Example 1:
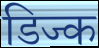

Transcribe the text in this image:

डिज्क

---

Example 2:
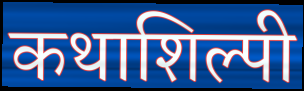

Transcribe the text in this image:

कथाशिल्पी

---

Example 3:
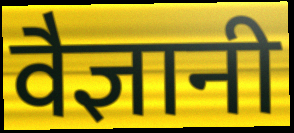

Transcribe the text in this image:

वैज्ञानी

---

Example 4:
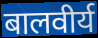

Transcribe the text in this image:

बालवीर्य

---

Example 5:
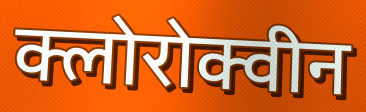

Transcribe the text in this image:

क्लोरोक्वीन